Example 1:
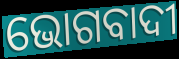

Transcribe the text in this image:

ଭୋଗବାଦୀ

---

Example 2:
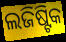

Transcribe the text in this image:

ଲଜିଷ୍ଟିକ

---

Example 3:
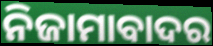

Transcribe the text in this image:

ନିଜାମାବାଦର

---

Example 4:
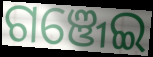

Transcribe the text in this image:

ଗଞ୍ଜେଇ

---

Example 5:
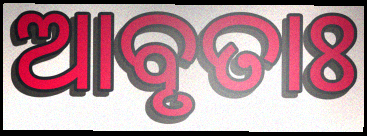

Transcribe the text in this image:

ଆବୃତାଃ